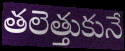
తలెత్తుకునే